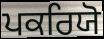
ਪਕਰਿਯੋ